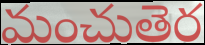
మంచుతెర